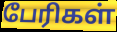
பேரிகள்